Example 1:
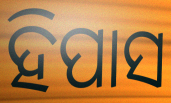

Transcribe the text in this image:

ହିପାସ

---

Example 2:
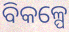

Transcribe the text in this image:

ବିକଳ୍ପେ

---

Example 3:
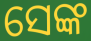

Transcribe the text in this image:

ସେଙ୍କ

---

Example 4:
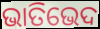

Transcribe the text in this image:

ଭାତିଭେଦ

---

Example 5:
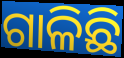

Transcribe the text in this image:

ଗାଳିଛି